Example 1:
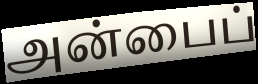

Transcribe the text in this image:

அன்பைப்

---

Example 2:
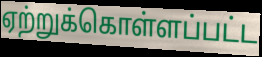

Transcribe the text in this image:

ஏற்றுக்கொள்ளப்பட்ட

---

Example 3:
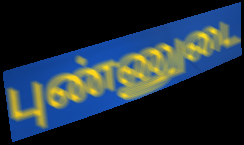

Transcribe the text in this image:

புண்ணுடை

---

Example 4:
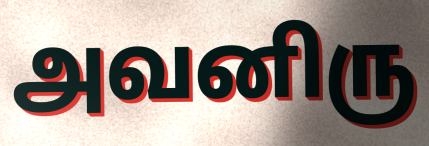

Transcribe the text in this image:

அவனிரு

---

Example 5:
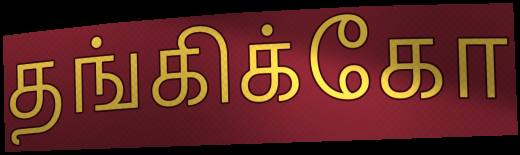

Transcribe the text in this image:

தங்கிக்கோ